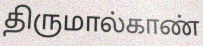
திருமால்காண்